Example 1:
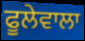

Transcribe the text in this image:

ਫੂਲੇਵਾਲਾ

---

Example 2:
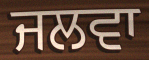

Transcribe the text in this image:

ਜਲਵਾ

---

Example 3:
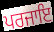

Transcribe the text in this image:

ਪਰਜਾਇ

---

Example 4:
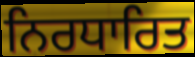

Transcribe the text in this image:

ਨਿਰਧਾਰਿਤ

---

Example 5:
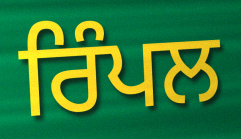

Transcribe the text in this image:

ਰਿੰਪਲ